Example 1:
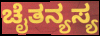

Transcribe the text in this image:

ಚೈತನ್ಯಸ್ಯ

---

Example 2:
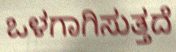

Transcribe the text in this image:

ಒಳಗಾಗಿಸುತ್ತದೆ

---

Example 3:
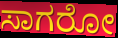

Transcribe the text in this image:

ಸಾಗರೋ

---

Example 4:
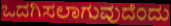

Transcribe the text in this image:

ಒದಗಿಸಲಾಗುವುದೆಂದು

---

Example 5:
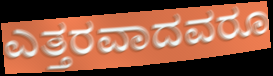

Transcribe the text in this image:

ಎತ್ತರವಾದವರೂ